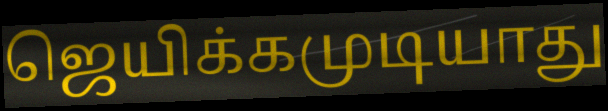
ஜெயிக்கமுடியாது